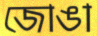
জোঙা